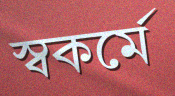
স্বকর্মে